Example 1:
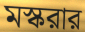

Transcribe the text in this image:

মস্করার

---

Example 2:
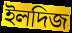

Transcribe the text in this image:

ইলদিজ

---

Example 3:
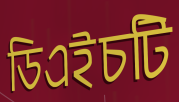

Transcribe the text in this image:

ডিএইচটি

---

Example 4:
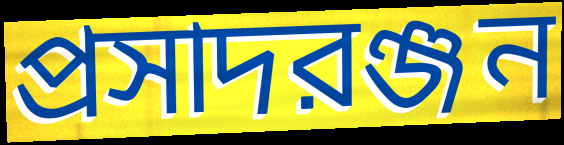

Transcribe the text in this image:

প্রসাদরঞ্জন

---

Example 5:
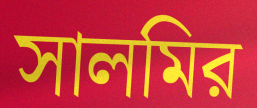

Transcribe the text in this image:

সালমির